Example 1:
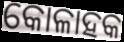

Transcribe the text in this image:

କୋଳାହକ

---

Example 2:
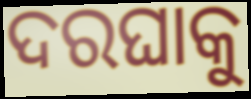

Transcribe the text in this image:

ଦରଘାକୁ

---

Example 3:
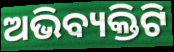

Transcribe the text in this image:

ଅଭିବ୍ୟକ୍ତିଟି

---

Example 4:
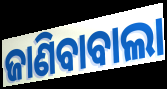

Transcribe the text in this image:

ଜାଣିବାବାଲା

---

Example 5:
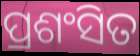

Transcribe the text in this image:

ପ୍ରଶଂସିତ